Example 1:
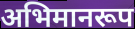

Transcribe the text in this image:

अभिमानरूप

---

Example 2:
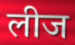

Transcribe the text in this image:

लीज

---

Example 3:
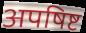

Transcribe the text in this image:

अपषिष्ट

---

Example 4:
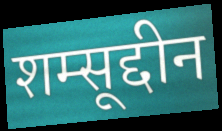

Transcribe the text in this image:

शम्सूद्दीन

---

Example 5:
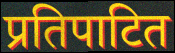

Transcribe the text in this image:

प्रतिपाटित